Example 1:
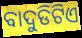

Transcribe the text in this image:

ବାଦୁଡିଟିଏ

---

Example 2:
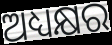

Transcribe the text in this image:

ଅଧ୍ୟକ୍ଷର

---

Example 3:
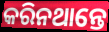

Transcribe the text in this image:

କରିନଥାନ୍ତେ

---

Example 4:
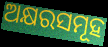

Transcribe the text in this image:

ଅକ୍ଷରସମୂହ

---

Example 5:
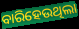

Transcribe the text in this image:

ବାରିହେଉଥିଲା